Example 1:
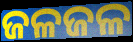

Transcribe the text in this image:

ଜଳଜଳ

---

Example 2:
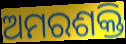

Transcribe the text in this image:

ଅମରଶକ୍ତି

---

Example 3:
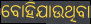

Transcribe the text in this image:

ବୋହିଯାଉଥିବା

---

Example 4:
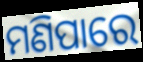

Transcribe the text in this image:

ମଣିପାରେ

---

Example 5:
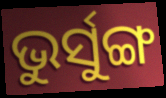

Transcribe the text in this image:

ଭୁର୍ସୁଙ୍ଗ